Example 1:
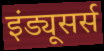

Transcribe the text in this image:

इंड्यूसर्स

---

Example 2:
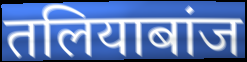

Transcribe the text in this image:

तलियाबांज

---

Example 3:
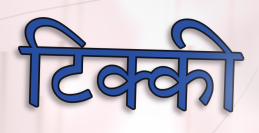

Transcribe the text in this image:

टिक्‍की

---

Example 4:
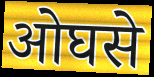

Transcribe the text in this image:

ओघसे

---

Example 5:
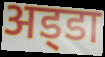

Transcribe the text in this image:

अड्‍डा